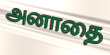
அனாதை